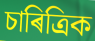
চাৰিত্ৰিক